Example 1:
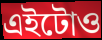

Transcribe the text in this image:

এইটোও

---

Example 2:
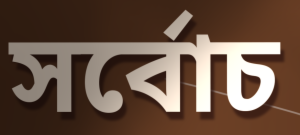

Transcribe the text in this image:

সৰ্বোচ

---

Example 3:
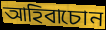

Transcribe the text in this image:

আহিবাচোন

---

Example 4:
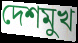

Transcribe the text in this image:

দেশমুখ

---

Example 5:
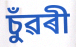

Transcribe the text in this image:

চুঁৱৰী